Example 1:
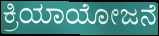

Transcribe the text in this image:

ಕ್ರಿಯಾಯೋಜನೆ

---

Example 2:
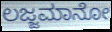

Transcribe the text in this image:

ಲಜ್ಜಮಾನೋ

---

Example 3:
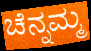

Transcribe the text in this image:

ಚೆನ್ನಮ್ಮ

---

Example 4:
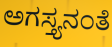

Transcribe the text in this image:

ಅಗಸ್ತ್ಯನಂತೆ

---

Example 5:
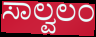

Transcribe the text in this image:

ಸಾಲ್ವಲಂ